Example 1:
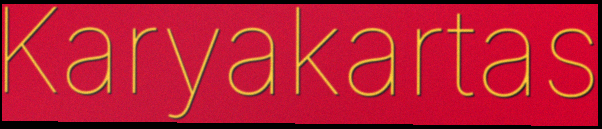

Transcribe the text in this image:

Karyakartas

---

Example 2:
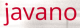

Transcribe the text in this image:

javano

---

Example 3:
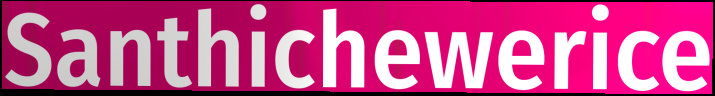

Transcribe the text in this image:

Santhichewerice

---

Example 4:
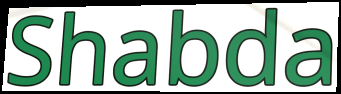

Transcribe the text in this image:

Shabda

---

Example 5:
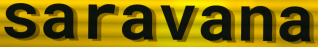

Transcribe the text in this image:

saravana